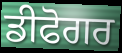
ਡੀਫੋਗਰ